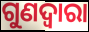
ଗୁଣଦ୍ଵାରା